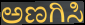
ಅಣಗಿಸಿ